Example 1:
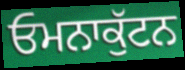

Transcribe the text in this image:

ਓਮਨਾਕੁੱਟਨ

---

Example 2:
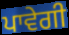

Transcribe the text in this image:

ਪਾਵੇਗੀ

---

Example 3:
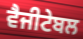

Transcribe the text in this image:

ਵੈਜੀਟੇਬਲ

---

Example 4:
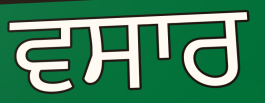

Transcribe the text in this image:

ਵਸਾਰ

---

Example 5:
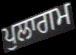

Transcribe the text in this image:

ਪੁਲਾਗਮ